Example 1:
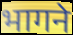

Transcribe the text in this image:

भागने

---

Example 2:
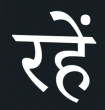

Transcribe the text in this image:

रहें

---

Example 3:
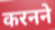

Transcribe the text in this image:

करनने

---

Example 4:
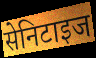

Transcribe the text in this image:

सेनिटाइज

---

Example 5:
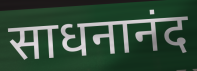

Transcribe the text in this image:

साधनानंद